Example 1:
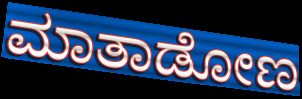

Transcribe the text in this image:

ಮಾತಾಡೋಣ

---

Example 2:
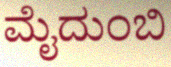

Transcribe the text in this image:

ಮೈದುಂಬಿ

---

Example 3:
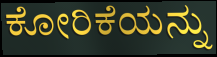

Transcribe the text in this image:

ಕೋರಿಕೆಯನ್ನು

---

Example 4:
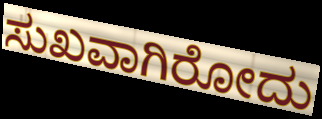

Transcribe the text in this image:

ಸುಖವಾಗಿರೋದು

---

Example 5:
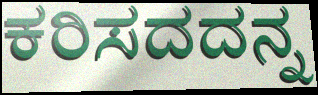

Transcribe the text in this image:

ಕರಿಸದದನ್ನ